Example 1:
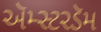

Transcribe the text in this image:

ઍમ્સ્ટરડૅમ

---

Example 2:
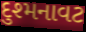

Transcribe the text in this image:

દુશ્મનાવટ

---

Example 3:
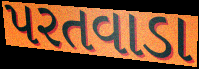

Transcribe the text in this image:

પરતવાડા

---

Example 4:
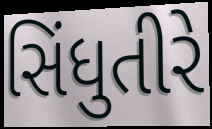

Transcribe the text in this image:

સિંધુતીરે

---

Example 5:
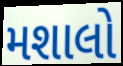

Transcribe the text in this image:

મશાલો